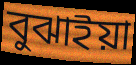
বুঝাইয়া